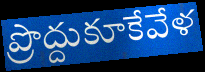
ప్రొద్దుకూకేవేళ